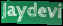
Jaydevi